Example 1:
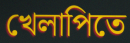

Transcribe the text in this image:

খেলাপিতে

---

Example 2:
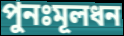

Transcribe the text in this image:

পুনঃমূলধন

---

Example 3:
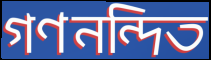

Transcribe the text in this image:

গণনন্দিত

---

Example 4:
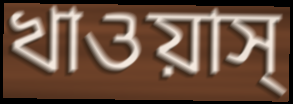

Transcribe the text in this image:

খাওয়াস্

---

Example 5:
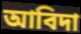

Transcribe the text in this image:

আবিদা